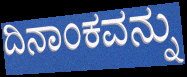
ದಿನಾಂಕವನ್ನು